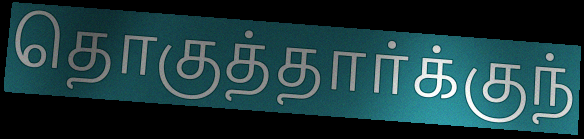
தொகுத்தார்க்குந்